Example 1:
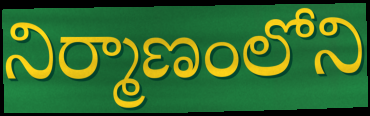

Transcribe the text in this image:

నిర్మాణంలోని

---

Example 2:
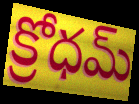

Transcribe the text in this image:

క్రోధమ్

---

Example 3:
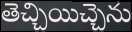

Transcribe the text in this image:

తెచ్చియిచ్చెను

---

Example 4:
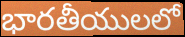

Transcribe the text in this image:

భారతీయులలో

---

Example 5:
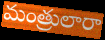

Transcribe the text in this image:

మంత్రులారా